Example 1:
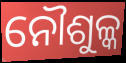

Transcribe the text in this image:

ନୌଶୁଳ୍କ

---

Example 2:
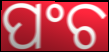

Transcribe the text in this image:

ପଂଚ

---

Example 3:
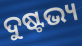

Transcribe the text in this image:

ଦୁଷ୍ଟଭ୍ୟ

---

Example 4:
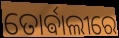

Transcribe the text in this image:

ତୋର୍ଵାଲୀରେ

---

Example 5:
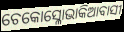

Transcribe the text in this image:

ଚେକୋସ୍ଳୋଭାକିଆବାସୀ